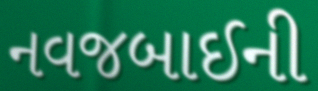
નવજબાઈની